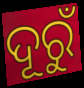
ଦୂରୁଁ